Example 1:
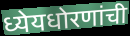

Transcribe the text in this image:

ध्येयधोरणांची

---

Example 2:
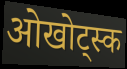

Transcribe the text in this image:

ओखोट्स्क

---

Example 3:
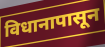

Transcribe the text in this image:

विधानापासून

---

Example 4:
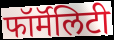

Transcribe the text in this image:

फॉर्मॅलिटी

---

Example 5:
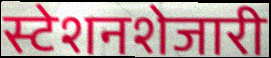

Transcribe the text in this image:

स्टेशनशेजारी